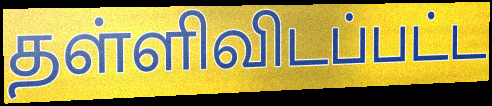
தள்ளிவிடப்பட்ட